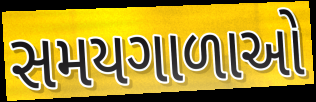
સમયગાળાઓ